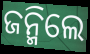
ଜନ୍ମିଲେ